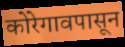
कोरेगावपासून